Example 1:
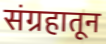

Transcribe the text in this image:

संग्रहातून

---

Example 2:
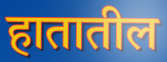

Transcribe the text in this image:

हातातील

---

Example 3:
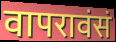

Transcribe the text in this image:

वापरावंसं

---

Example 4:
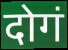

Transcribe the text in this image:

दोगं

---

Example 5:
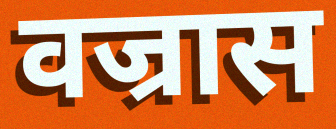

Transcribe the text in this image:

वज्रास